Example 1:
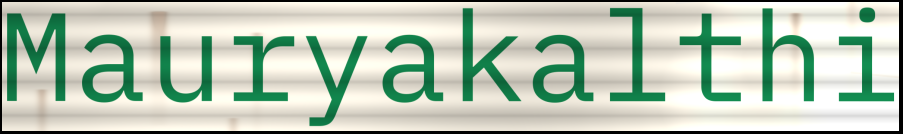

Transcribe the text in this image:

Mauryakalthi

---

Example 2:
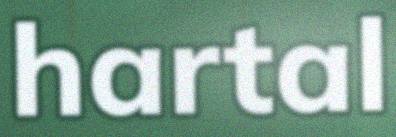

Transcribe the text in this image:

hartal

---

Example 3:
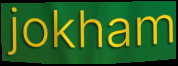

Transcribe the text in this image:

jokham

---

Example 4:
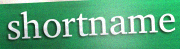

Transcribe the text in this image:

shortname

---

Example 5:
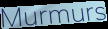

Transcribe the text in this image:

Murmurs